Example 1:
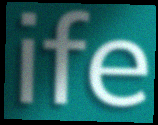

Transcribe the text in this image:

ife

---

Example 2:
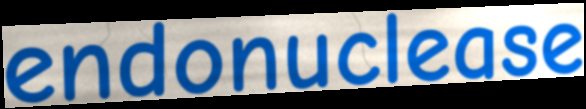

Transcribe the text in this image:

endonuclease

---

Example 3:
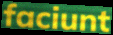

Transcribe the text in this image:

faciunt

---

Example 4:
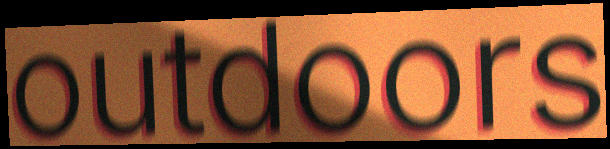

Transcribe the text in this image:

outdoors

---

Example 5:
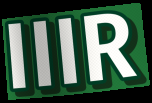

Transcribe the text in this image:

IIIR